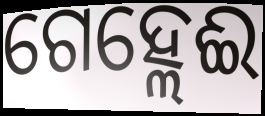
ଗେହ୍ଲେଈ